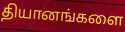
தியானங்களை